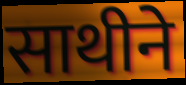
साथीने